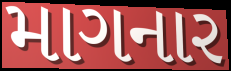
માગનાર